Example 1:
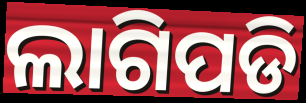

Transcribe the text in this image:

ଲାଗିପଡି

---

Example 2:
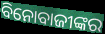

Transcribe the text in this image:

ବିନୋବାଜୀଙ୍କର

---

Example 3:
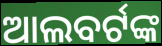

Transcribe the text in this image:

ଆଲବର୍ଟଙ୍କ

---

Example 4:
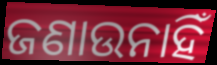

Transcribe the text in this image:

ଜଣାଉନାହିଁ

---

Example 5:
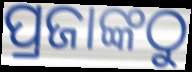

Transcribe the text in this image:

ପ୍ରଜାଙ୍କଠୁ